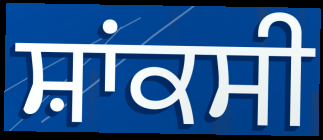
ਸ਼ਾਂਕਸੀ